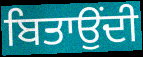
ਬਿਤਾਉਂਦੀ